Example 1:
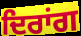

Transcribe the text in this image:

ਦਿਰਾਂਗ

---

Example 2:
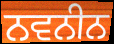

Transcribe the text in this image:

ਨਵਨੀਨ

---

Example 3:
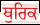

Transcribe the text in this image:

ਥੁਰਿਕ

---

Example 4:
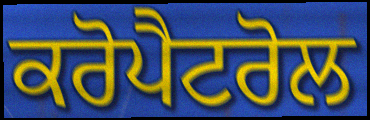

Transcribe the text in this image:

ਕਰੋਪੈਟਰੋਲ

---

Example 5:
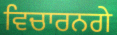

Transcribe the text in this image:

ਵਿਚਾਰਨਗੇ